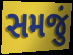
સમજું